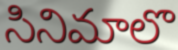
సినిమాలొ